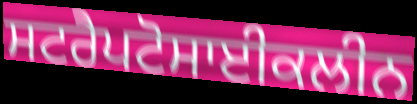
ਸਟਰੈਪਟੋਸਾਈਕਲੀਨ